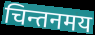
चिन्तनमय